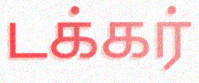
டக்கர்